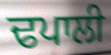
ਢਪਾਲੀ